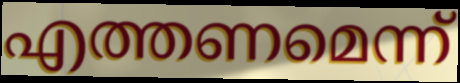
എത്തണമെന്ന്